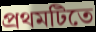
প্রথমটিতে